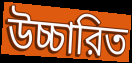
উচ্চারিত